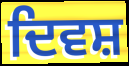
ਦਿਵਸ਼